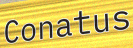
Conatus